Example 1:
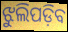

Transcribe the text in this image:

ଝୁଲିପଡ଼ିବ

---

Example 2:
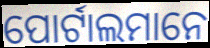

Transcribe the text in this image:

ପୋର୍ଟାଲମାନେ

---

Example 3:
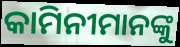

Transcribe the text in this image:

କାମିନୀମାନଙ୍କୁ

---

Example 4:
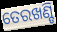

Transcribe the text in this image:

ତେରଖଣ୍ଡି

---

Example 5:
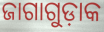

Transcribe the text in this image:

ଜାଗାଗୁଡ଼ାକ